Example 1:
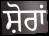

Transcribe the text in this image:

ਸ਼ੋਰਾਂ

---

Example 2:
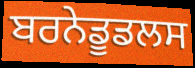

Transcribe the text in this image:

ਬਰਨੇਡੂਡਲਸ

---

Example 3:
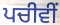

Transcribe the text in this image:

ਪਚੀਵੀਂ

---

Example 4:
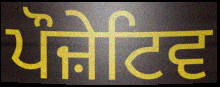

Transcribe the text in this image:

ਪੌਜ਼ੇਟਿਵ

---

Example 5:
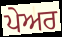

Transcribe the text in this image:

ਪੇਅਰ